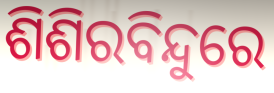
ଶିଶିରବିନ୍ଦୁରେ